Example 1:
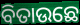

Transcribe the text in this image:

ବିତାଉଛେ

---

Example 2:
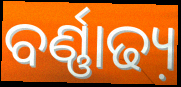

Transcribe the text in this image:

ବର୍ଣ୍ଣାଢ୍ୟ଼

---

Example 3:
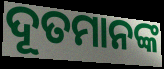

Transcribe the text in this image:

ଦୂତମାନଙ୍କ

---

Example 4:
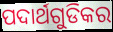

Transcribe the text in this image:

ପଦାର୍ଥଗୁଡିକର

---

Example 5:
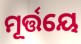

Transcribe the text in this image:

ମୂର୍ତ୍ତୟେ